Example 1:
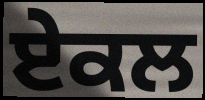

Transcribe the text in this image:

ਏਕਲ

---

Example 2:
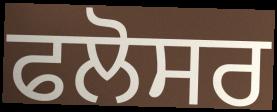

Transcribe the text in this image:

ਫਲੋਸਰ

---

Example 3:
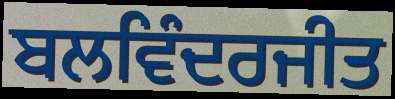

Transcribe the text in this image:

ਬਲਵਿੰਦਰਜੀਤ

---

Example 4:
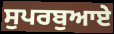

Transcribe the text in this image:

ਸੁਪਰਬੁਆਏ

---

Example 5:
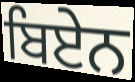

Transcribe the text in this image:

ਬਿਏਨ